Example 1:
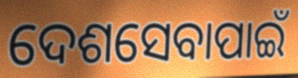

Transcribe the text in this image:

ଦେଶସେବାପାଇଁ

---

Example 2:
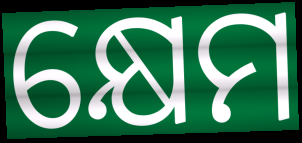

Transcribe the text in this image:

କ୍ଷେମ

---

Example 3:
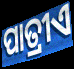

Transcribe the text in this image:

ପାତ୍ରୀଏ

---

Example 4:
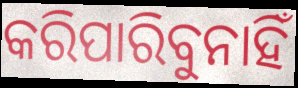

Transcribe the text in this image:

କରିପାରିବୁନାହିଁ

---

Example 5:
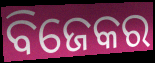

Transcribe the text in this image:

ବିଜେକର